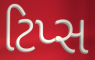
ટિપ્સ